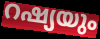
റഷ്യയും